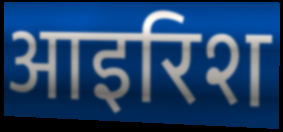
आइरिश